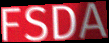
FSDA